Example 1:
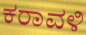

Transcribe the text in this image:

ಕರಾವಳಿ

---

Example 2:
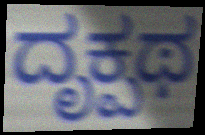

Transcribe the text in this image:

ದೃಕ್ಪಥ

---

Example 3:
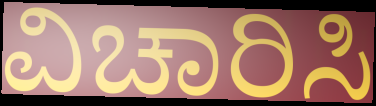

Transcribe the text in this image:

ವಿಚಾರಿಸಿ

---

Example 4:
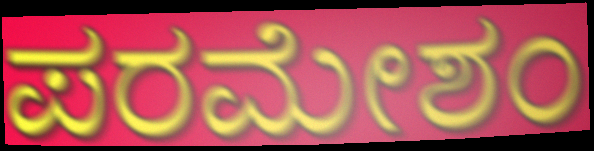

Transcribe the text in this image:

ಪರಮೇಶಂ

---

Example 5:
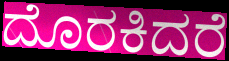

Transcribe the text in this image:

ದೊರಕಿದರೆ